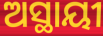
ଅସ୍ଥାୟୀ